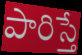
పారిస్తే